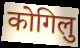
कोगिलु